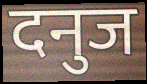
दनुज